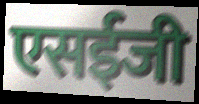
एसईजी